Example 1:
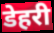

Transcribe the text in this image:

डेहरी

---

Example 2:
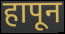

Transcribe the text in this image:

हापून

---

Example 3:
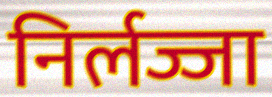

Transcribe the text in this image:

निर्लज्जा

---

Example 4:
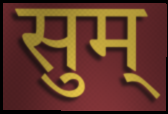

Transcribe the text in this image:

सुम्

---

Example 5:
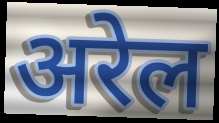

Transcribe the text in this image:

अरेल